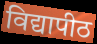
विद्यापीठ